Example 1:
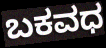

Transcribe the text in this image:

ಬಕವಧ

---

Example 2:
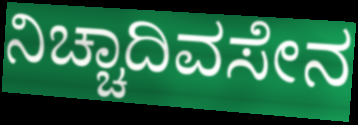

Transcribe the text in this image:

ನಿಚ್ಚಾದಿವಸೇನ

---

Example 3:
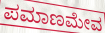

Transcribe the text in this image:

ಪಮಾಣಮೇವ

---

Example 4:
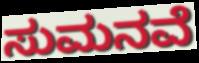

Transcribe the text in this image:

ಸುಮನವೆ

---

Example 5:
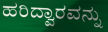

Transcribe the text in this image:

ಹರಿದ್ವಾರವನ್ನು